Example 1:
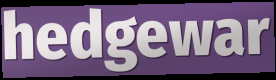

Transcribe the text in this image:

hedgewar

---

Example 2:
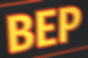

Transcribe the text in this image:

BEP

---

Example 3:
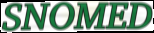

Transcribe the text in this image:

SNOMED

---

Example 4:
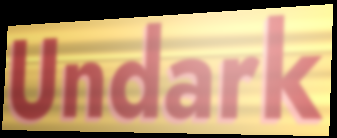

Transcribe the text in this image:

Undark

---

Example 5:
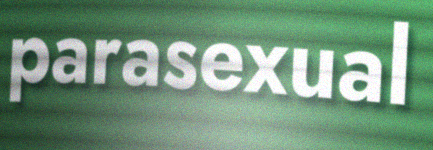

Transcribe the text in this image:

parasexual